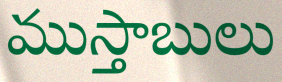
ముస్తాబులు